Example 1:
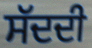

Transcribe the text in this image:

ਸੱਦਦੀ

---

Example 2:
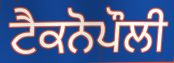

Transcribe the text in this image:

ਟੈਕਨੋਪੌਲੀ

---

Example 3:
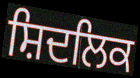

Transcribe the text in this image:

ਸ਼ਿਦਲਿਕ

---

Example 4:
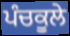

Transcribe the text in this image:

ਪੰਚਕੂਲੇ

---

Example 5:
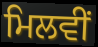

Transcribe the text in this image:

ਮਿਲਵੀਂ